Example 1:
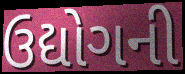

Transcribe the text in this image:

ઉદ્યોગની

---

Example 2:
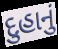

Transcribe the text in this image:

દુહાનું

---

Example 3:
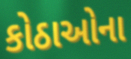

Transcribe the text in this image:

કોઠાઓના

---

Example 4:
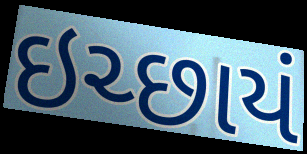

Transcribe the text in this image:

ઇચ્છાયં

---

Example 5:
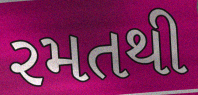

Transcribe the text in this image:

રમતથી